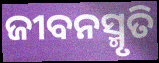
ଜୀବନସ୍ମୃତି